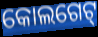
କୋଲଗେଟ୍